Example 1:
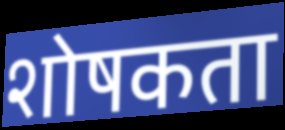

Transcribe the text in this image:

शोषकता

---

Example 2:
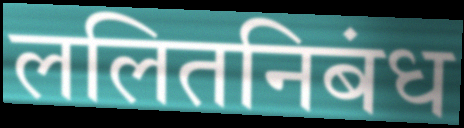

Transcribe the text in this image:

ललितनिबंध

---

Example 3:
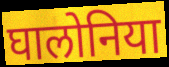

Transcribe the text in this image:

घालोनिया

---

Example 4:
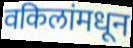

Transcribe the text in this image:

वकिलांमधून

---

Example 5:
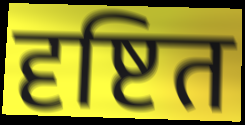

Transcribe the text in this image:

दृष्टित